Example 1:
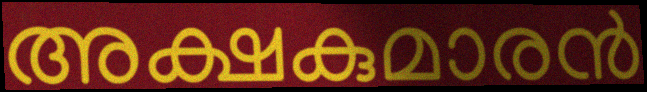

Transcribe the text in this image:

അക്ഷകുമാരൻ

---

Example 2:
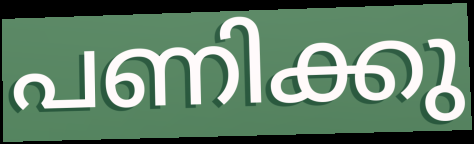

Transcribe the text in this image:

പണിക്കു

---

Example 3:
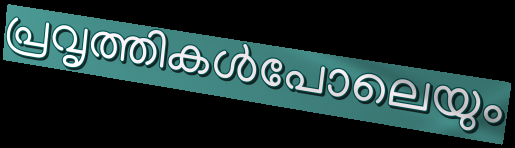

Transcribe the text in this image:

പ്രവൃത്തികൾപോലെയും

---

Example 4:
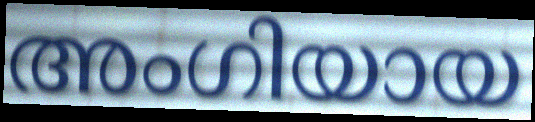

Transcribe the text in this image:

അംഗിയായ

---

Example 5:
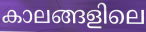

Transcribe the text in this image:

കാലങ്ങളിലെ